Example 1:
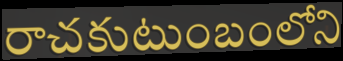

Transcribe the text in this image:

రాచకుటుంబంలోని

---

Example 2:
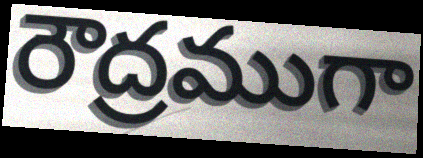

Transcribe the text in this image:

రౌద్రముగా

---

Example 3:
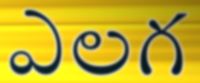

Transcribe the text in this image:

ఎలగ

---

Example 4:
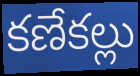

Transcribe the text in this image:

కణేకల్లు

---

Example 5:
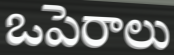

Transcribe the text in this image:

ఒపెరాలు